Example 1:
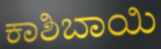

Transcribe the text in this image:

ಕಾಶಿಬಾಯಿ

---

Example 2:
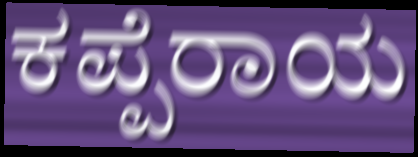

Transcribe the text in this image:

ಕಪ್ಪೆರಾಯ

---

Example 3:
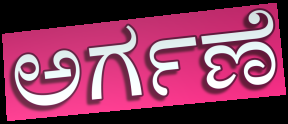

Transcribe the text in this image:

ಅರ್ಗಣೆ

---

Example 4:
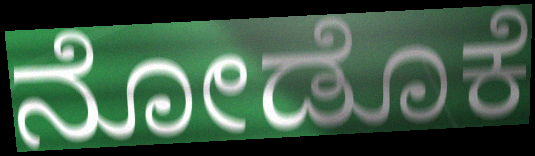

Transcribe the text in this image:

ನೋಡೊಕೆ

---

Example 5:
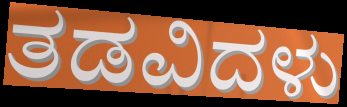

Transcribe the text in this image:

ತಡವಿದಳು